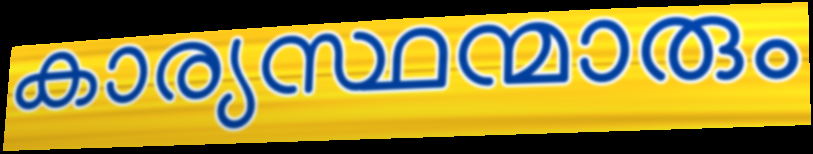
കാര്യസ്ഥന്മാരും